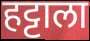
हट्टाला